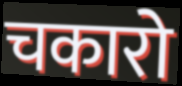
चकारो